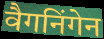
वैगनिंगेन